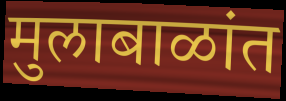
मुलाबाळांत